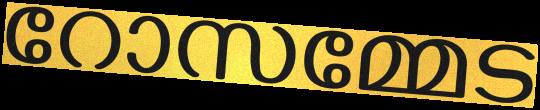
റോസമ്മേട